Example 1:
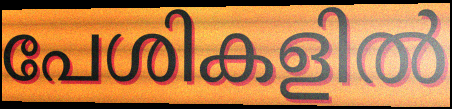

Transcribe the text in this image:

പേശികളിൽ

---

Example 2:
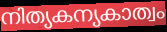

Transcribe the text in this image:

നിത്യകന്യകാത്വം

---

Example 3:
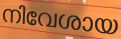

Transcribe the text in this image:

നിവേശായ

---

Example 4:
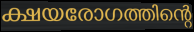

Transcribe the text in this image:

ക്ഷയരോഗത്തിന്റെ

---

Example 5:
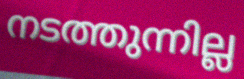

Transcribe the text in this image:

നടത്തുന്നില്ല